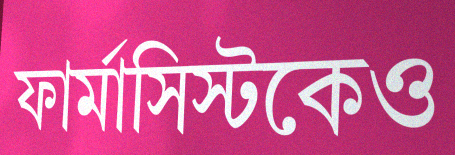
ফার্মাসিস্টকেও